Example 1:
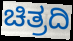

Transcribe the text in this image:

ಚಿತ್ರದಿ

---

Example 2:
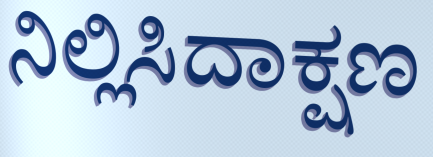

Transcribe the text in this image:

ನಿಲ್ಲಿಸಿದಾಕ್ಷಣ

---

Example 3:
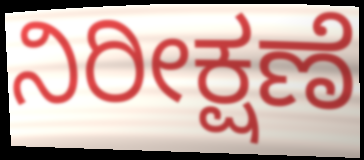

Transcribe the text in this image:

ನಿರೀಕ್ಷಣೆ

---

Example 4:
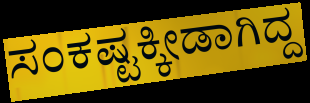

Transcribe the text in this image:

ಸಂಕಷ್ಟಕ್ಕೀಡಾಗಿದ್ದ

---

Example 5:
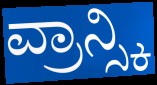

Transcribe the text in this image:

ವ್ರಾನ್ಸ್ಕಿ